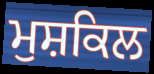
ਮੁਸ਼ਕਿਲ